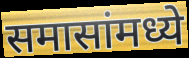
समासांमध्ये